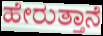
ಹೇರುತ್ತಾನೆ